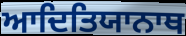
ਆਦਿਤਿਯਾਨਾਥ